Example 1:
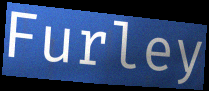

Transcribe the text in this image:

Furley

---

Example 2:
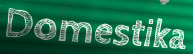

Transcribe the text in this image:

Domestika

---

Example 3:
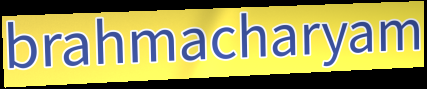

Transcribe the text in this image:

brahmacharyam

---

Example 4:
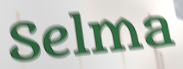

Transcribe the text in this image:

Selma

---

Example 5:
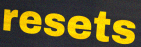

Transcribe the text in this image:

resets